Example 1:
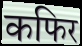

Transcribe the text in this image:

कफिर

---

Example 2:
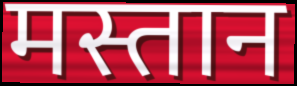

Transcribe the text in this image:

मस्तान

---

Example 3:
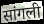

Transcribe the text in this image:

सांगली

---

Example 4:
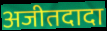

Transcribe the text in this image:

अजीतदादा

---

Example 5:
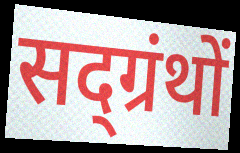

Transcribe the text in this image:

सद्ग्रंथों